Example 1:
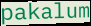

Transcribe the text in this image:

pakalum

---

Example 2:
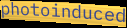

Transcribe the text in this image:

photoinduced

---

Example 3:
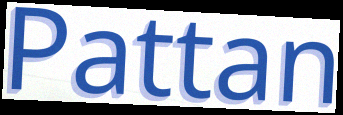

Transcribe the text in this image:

Pattan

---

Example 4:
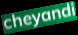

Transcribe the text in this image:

cheyandi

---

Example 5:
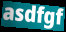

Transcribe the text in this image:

asdfgf